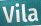
Vila